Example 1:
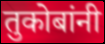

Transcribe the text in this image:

तुकोबांनी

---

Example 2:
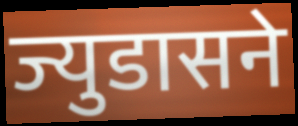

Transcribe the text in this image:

ज्युडासने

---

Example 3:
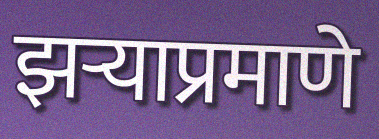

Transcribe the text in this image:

झऱ्याप्रमाणे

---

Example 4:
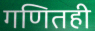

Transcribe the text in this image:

गणितही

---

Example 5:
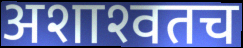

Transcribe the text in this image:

अशाश्वतच